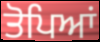
ਤੋਪਿਆਂ